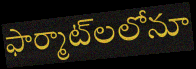
ఫార్మాట్‌లలోనూ